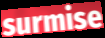
surmise